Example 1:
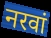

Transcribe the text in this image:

नरवां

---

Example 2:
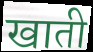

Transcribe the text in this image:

खाती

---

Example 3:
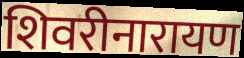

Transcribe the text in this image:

शिवरीनारायण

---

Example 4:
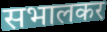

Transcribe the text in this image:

सभालकर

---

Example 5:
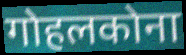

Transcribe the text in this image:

गोहलकोना